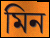
মিন